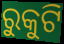
ରୁକୁଟି